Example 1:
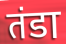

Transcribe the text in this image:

तंडा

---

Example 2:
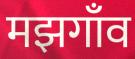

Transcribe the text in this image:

मझगाँव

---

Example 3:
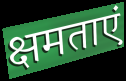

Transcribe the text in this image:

क्षमताएं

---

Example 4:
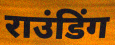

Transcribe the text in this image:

राउंडिंग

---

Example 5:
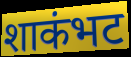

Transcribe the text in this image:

शाकंभट